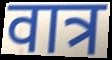
वात्र